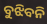
ବୁଝିବନି